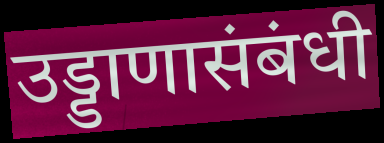
उड्डाणासंबंधी